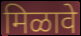
मिळावे